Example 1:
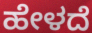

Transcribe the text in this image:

ಹೇಳದೆ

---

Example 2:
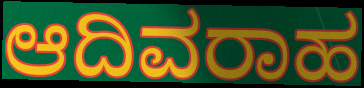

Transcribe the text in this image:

ಆದಿವರಾಹ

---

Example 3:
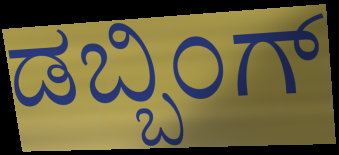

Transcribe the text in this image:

ಡಬ್ಬಿಂಗ್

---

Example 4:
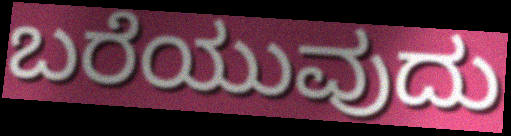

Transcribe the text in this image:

ಬರೆಯುವುದು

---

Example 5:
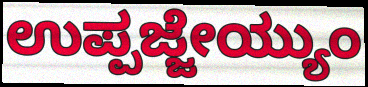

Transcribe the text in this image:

ಉಪ್ಪಜ್ಜೇಯ್ಯುಂ